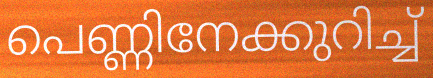
പെണ്ണിനേക്കുറിച്ച്